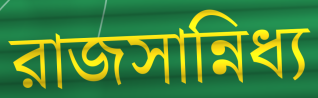
রাজসান্নিধ্য